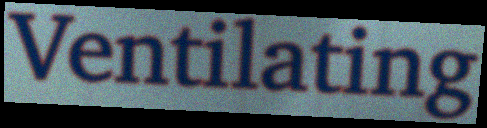
Ventilating